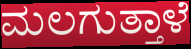
ಮಲಗುತ್ತಾಳೆ